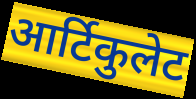
आर्टिकुलेट